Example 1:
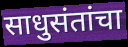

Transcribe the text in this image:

साधुसंतांचा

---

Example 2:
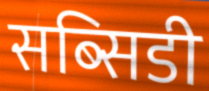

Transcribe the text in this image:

सब्सिडी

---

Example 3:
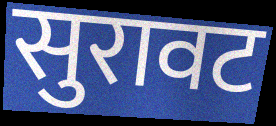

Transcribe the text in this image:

सुरावट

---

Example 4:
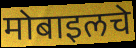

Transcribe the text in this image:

मोबाइलचे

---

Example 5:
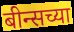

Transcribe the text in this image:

बीन्सच्या